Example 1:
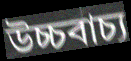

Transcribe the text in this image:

উচ্চবাচ্য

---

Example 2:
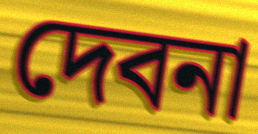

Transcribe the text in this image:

দেবনা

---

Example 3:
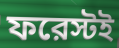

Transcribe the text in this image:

ফরেস্টই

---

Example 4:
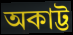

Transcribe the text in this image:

অকাট্ট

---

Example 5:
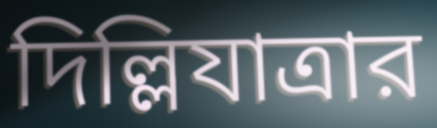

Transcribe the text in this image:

দিল্লিযাত্রার